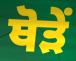
ਥੋੜੇਂ